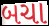
બચા